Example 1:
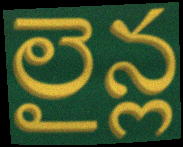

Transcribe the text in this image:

లైన్ల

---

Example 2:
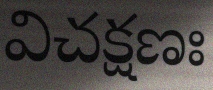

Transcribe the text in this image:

విచక్షణః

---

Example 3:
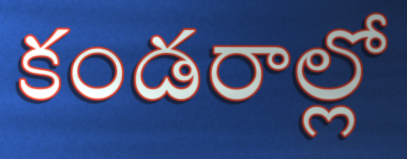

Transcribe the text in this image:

కండరాల్లో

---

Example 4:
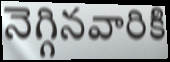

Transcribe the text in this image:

నెగ్గినవారికి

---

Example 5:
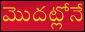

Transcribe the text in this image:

మొదట్లోనే